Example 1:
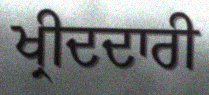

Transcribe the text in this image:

ਖ੍ਰੀਦਦਾਰੀ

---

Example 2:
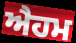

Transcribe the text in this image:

ਐਹਮ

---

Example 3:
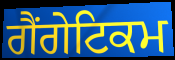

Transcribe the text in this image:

ਗੈਂਗੇਟਿਕਮ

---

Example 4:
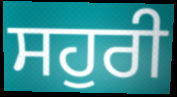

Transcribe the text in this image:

ਸਹੁਰੀ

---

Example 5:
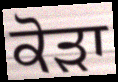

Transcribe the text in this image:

ਕੋੜਾ